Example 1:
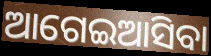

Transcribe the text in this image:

ଆଗେଇଆସିବା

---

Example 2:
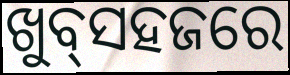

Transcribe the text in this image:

ଖୁବ୍‌ସହଜରେ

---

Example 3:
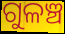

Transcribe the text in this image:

ଗୁଳଞ୍ଚ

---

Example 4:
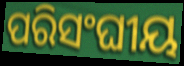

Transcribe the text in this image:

ପରିସଂଘୀୟ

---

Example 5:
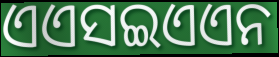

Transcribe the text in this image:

ଏଏସଇଏଏନ